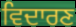
ਵਿਦਾਰਣ